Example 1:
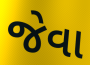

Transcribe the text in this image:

જેવા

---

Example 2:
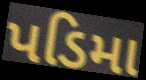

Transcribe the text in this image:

પડિમા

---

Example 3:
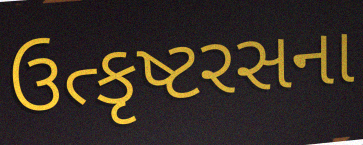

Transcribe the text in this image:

ઉત્કૃષ્ટરસના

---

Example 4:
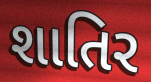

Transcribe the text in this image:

શાતિર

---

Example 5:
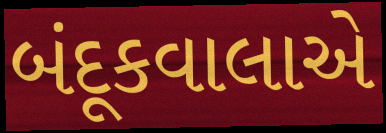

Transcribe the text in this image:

બંદૂકવાલાએ